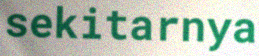
sekitarnya